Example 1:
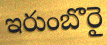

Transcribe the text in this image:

ఇరుంబొరై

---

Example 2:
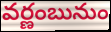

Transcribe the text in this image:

వర్ణంబునుం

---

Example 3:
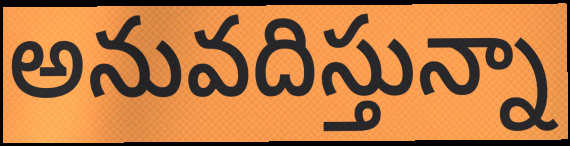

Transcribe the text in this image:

అనువదిస్తున్నా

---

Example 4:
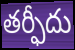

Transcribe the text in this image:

తర్ఫీదు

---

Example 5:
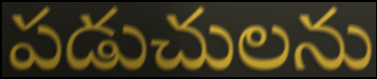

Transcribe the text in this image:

పడుచులను